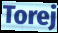
Torej